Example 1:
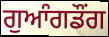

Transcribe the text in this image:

ਗੁਆੰਗਡੌਂਗ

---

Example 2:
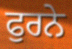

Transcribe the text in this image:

ਫੁਰਨੇ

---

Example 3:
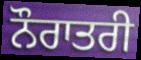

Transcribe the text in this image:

ਨੌਰਾਤਰੀ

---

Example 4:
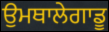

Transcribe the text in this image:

ਉਮਥਾਲੇਗਾਡੂ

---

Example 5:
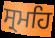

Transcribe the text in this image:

ਸ੍ਰਮਹਿ